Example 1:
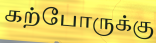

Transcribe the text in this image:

கற்போருக்கு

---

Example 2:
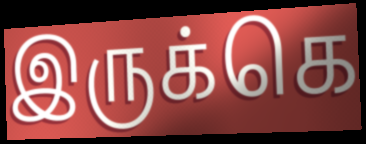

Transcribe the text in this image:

இருக்கெ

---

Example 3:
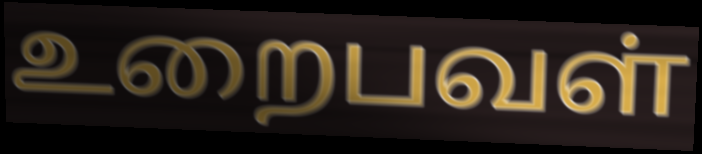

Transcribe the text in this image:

உறைபவள்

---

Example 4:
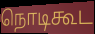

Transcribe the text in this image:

நொடிகூட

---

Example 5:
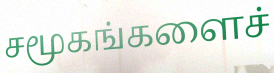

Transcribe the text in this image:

சமூகங்களைச்